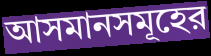
আসমানসমূহের